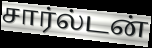
சார்ல்டன்